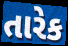
તારેક